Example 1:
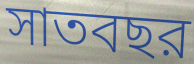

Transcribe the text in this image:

সাতবছর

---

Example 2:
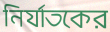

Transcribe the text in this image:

নির্যাতকের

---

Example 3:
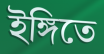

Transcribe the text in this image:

ইঙ্গিতে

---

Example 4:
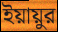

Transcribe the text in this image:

ইয়ায়ুর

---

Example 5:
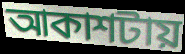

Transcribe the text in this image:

আকাশটায়